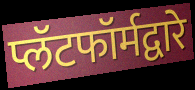
प्लॅटफॉर्मद्वारे